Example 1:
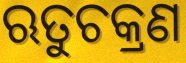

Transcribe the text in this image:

ଋତୁଚକ୍ରଣ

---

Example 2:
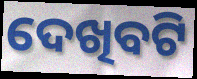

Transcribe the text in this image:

ଦେଖିବଟି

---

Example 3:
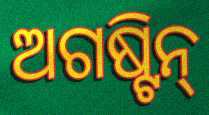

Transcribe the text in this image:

ଅଗଷ୍ଟିନ୍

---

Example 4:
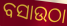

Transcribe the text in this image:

ବସାଉଠା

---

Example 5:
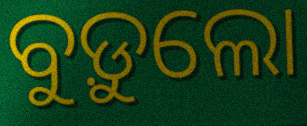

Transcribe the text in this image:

ବୁଡ଼ୁଲୋ